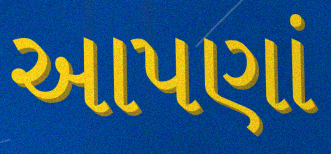
આપણાં